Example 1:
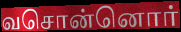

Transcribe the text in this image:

வசொன்னொர்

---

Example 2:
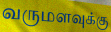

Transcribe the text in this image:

வருமளவுக்கு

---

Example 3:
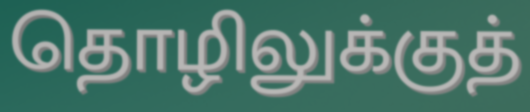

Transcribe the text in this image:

தொழிலுக்குத்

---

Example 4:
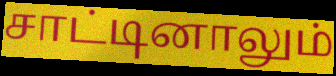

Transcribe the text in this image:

சாட்டினாலும்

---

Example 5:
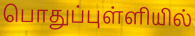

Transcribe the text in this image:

பொதுப்புள்ளியில்